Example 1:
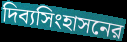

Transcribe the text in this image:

দিব্যসিংহাসনের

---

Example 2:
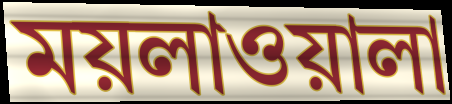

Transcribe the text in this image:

ময়লাওয়ালা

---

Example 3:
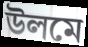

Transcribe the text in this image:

উলমে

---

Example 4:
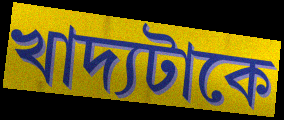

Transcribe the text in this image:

খাদ্যটাকে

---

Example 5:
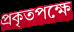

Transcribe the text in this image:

প্রকৃতপক্ষে